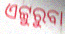
ଏଟ୍ଟୁରୁବା